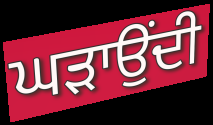
ਘੜਾਉਂਦੀ